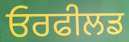
ਓਰਫੀਲਡ